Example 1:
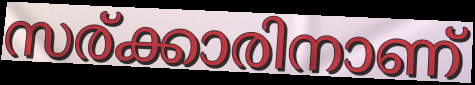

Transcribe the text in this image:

സര്ക്കാരിനാണ്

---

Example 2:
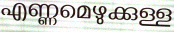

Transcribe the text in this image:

എണ്ണമെഴുക്കുള്ള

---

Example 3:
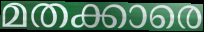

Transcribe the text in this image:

മതക്കാരെ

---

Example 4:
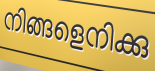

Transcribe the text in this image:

നിങ്ങളെനിക്കു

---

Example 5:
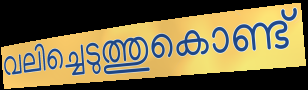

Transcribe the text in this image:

വലിച്ചെടുത്തുകൊണ്ട്